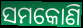
ସମକୋଣି